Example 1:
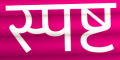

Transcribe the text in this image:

स्पष्ट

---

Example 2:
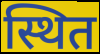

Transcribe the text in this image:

स्थित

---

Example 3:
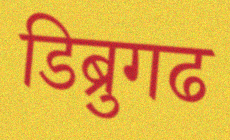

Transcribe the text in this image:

डिब्रुगढ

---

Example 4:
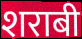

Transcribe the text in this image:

शराबी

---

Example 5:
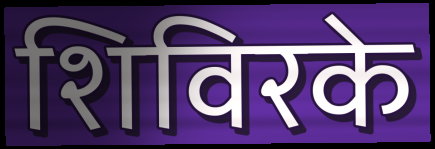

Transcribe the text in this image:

शिविरके